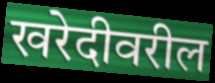
खरेदीवरील